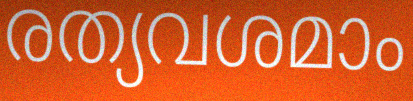
രത്യവശമാം